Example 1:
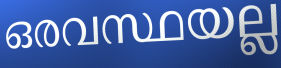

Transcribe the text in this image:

ഒരവസ്ഥയല്ല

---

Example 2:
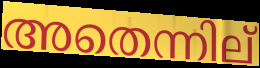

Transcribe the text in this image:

അതെന്നില്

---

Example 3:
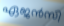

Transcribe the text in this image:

ഏജൻസി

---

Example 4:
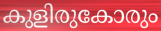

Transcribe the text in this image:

കുളിരുകോരും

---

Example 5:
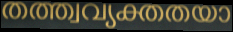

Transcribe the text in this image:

തത്ത്വവ്യക്തതയാ